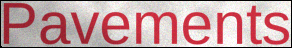
Pavements